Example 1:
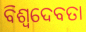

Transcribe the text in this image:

ବିଶ୍ୱଦେବତା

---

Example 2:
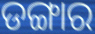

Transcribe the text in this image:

ଡଙ୍ଗାର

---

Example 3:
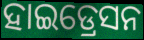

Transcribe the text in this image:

ହାଇଡ୍ରେସନ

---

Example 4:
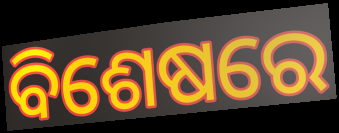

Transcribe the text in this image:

ବିଶେଷରେ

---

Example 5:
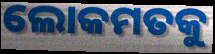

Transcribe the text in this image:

ଲୋକମତକୁ